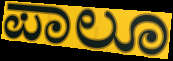
ಪಾಲೂ